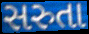
સરુતા